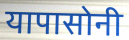
यापासोनी